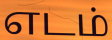
எடம்